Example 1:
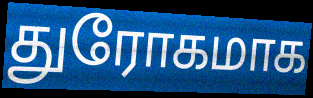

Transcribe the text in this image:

துரோகமாக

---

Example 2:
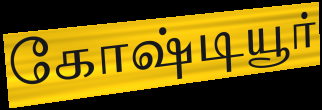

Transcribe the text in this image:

கோஷ்டியூர்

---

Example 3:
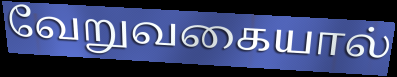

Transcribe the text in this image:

வேறுவகையால்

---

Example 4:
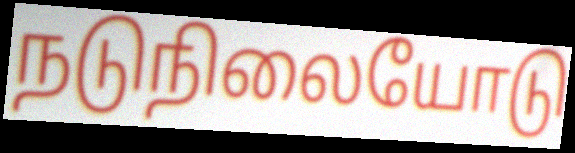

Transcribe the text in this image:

நடுநிலையோடு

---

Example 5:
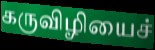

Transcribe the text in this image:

கருவிழியைச்